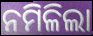
ନମିଳିଲା